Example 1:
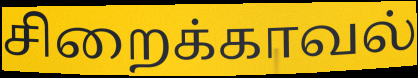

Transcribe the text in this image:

சிறைக்காவல்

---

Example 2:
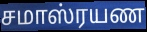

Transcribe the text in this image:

சமாஸ்ரயண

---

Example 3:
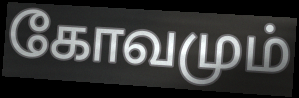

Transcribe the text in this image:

கோவமும்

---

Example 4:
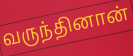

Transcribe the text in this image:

வருந்தினான்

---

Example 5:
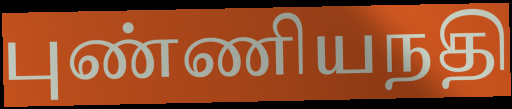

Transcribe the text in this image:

புண்ணியநதி